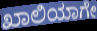
ಖಾಲಿಯಾಗೇ